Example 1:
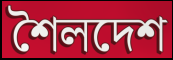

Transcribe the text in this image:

শৈলদেশ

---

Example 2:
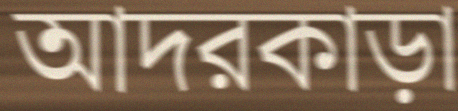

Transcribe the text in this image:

আদরকাড়া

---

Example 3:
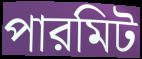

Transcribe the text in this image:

পারমিট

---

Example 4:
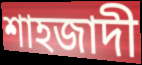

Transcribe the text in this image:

শাহজাদী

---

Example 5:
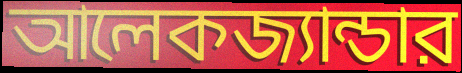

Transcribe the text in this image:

আলেকজ্যান্ডার